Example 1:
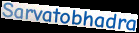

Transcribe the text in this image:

Sarvatobhadra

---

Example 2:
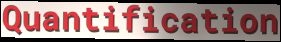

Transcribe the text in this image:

Quantification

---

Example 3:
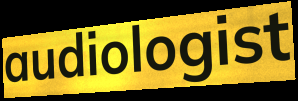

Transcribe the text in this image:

audiologist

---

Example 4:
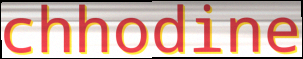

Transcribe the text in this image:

chhodine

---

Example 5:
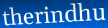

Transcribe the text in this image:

therindhu